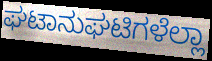
ಘಟಾನುಘಟಿಗಳೆಲ್ಲಾ